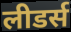
लीडर्स